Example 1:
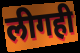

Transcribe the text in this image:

लीगही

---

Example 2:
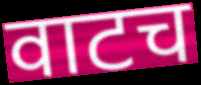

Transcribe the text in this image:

वाटच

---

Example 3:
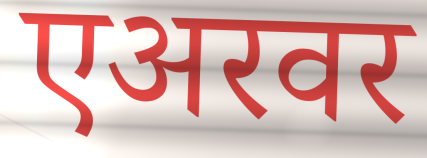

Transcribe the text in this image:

एअरवर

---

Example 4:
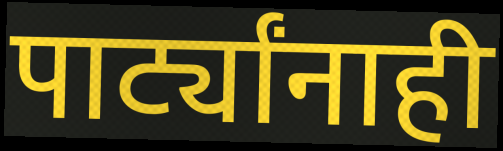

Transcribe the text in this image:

पार्ट्यांनाही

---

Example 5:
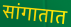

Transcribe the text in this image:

सांगातात